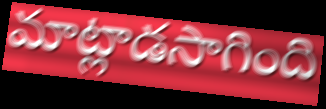
మాట్లాడసాగింది